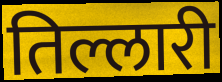
तिल्लारी